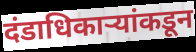
दंडाधिकाऱ्यांकडून